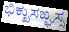
ಭಿಕ್ಖುಸಙ್ಘಸ್ಸ